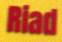
Riad